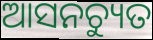
ଆସନଚ୍ୟୁତ